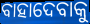
ବାହାଦେବାକୁ